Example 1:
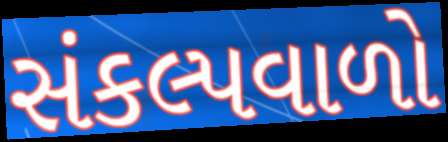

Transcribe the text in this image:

સંકલ્પવાળો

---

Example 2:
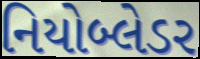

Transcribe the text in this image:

નિયોબ્લેડર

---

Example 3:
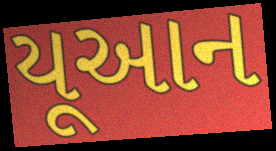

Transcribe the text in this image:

યૂઆન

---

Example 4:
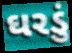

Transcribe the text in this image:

ઘરડું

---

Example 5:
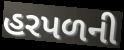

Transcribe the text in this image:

હરપળની